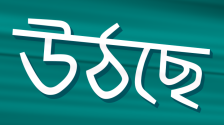
উঠছে